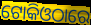
ଟୋକିଓଠାରେ